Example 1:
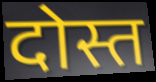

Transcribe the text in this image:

दोस्त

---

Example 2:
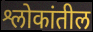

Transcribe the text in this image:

श्लोकांतील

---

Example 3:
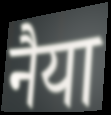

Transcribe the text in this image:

नैया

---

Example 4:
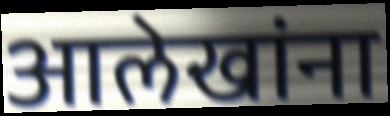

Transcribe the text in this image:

आलेखांना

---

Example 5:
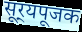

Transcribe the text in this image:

सूर्यपूजक